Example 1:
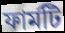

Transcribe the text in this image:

ফার্মটি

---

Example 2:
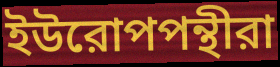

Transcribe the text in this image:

ইউরোপপন্থীরা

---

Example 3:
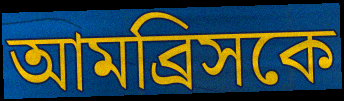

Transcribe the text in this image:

আমব্রিসকে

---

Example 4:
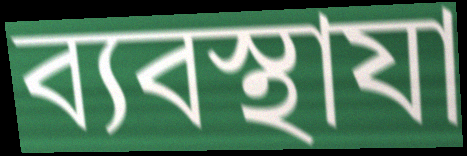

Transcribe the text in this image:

ব্যবস্থাযা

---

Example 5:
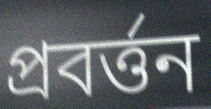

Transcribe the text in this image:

প্রবর্ত্তন